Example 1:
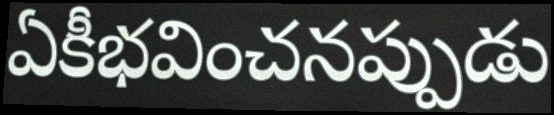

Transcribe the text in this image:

ఏకీభవించనప్పుడు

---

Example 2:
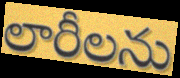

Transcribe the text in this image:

లారీలను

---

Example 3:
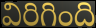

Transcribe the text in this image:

విరిగింది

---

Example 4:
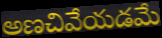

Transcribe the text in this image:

అణచివేయడమే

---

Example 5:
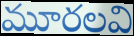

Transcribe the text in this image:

మూరలవి